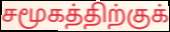
சமூகத்திற்குக்